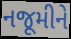
નજૂમીને